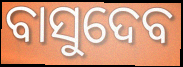
ବାସୁଦେବ